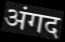
अंगद